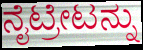
ನೈಟ್ರೇಟನ್ನು